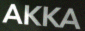
AKKA